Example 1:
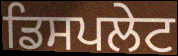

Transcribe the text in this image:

ਡਿਸਪਲੇਟ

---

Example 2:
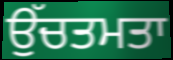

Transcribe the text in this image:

ਉੱਚਤਮਤਾ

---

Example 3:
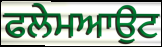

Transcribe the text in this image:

ਫਲੇਮਆਉਟ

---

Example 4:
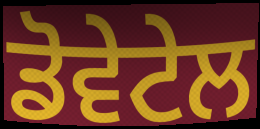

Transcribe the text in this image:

ਡੋਵੇਟੇਲ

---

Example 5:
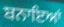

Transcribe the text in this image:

ਬਨਾਇਆਂ